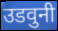
उडवुनी